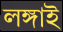
লঙ্গাই